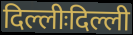
दिल्लीःदिल्ली